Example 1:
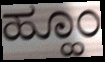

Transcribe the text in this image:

ಹ್ಹೂಂ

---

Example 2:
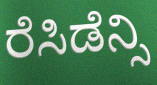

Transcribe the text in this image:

ರೆಸಿಡೆನ್ಸಿ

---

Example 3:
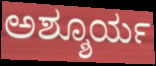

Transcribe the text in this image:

ಅಶ್ಶೂರ್ಯ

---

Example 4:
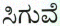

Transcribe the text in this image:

ಸಿಗುವೆ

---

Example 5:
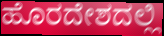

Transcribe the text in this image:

ಹೊರದೇಶದಲ್ಲಿ